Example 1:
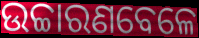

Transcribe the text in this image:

ଉଚ୍ଚାରଣବେଳେ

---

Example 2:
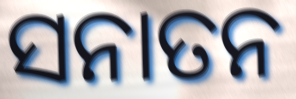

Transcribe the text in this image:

ସନାତନ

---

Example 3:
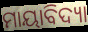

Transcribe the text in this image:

ମାୟାବିଦ୍ୟା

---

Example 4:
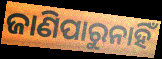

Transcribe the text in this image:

ଜାଣିପାରୁନାହିଁ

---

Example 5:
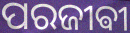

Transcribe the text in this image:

ପରଜୀଵୀ